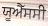
ਯੂਐੱਸਸੀ